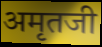
अमृतजी